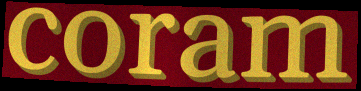
coram